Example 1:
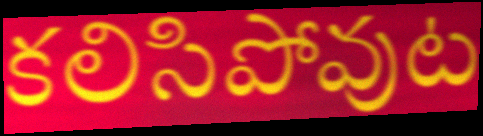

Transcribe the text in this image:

కలిసిపోవుట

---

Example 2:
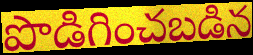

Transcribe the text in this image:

పొడిగించబడిన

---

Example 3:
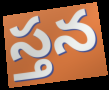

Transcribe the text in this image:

స్తన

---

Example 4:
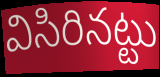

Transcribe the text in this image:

విసిరినట్టు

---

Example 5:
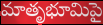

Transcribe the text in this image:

మాతృభూమిపై